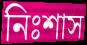
নিঃশাস